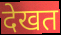
देखत